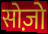
सोज़ो